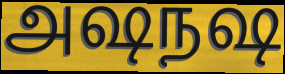
அஷநஷ